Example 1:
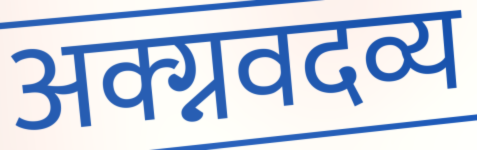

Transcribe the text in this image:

अक्ग्नवदव्य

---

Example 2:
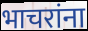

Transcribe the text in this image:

भाचरांना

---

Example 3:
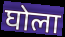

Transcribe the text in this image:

घोला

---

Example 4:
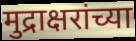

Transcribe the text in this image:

मुद्राक्षरांच्या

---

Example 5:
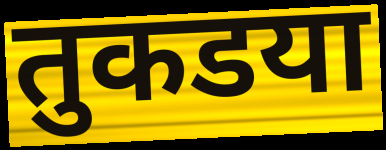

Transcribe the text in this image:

तुकडया